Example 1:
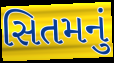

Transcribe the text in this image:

સિતમનું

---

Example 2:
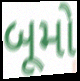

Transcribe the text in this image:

બૂમો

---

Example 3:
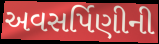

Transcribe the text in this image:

અવસર્પિણીની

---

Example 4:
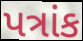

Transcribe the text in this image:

પત્રાંક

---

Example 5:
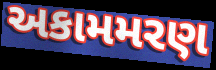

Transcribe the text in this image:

અકામમરણ